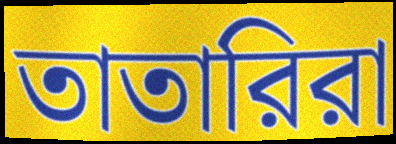
তাতারিরা